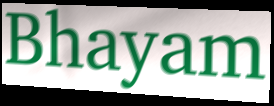
Bhayam